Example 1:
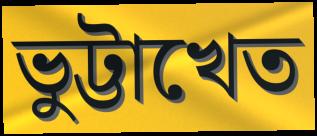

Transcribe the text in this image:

ভুট্টাখেত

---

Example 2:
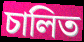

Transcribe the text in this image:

চালিত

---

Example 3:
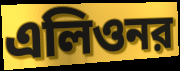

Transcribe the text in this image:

এলিওনর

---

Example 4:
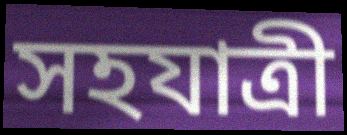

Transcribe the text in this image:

সহযাত্রী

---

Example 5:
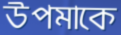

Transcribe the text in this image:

উপমাকে